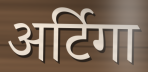
अर्टिगा